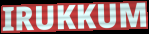
IRUKKUM